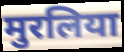
मुरलिया